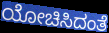
ಯೋಚಿಸಿದಂತೆ